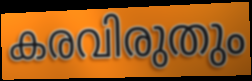
കരവിരുതും